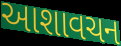
આશાવચન